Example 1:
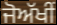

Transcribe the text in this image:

ਜੋਅੱਖੀਂ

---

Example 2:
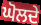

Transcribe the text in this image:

ਘੋਲਦੇ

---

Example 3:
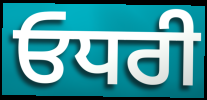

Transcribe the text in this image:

ਓਧਰੀ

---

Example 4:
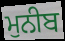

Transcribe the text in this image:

ਮੁਨੀਬ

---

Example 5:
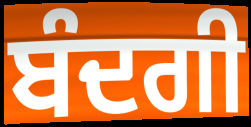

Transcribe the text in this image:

ਬੰਦਗੀ